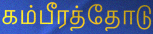
கம்பீரத்தோடு